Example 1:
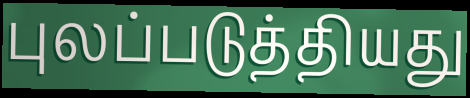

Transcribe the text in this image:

புலப்படுத்தியது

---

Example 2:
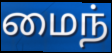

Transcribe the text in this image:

மைந்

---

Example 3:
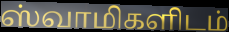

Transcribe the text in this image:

ஸ்வாமிகளிடம்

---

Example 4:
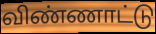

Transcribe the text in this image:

விண்ணாட்டு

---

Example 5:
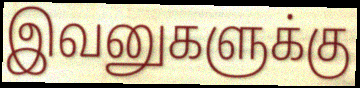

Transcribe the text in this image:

இவனுகளுக்கு